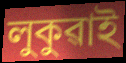
লুকুৱাই